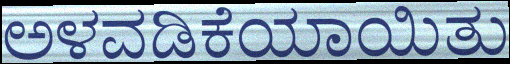
ಅಳವಡಿಕೆಯಾಯಿತು